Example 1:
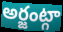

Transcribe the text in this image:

అర్జంట్గా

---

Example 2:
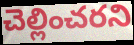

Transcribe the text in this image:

చెల్లించరని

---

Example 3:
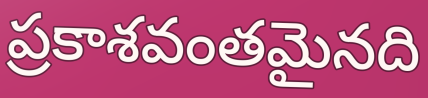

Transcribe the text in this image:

ప్రకాశవంతమైనది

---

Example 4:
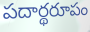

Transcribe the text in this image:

పదార్థరూపం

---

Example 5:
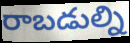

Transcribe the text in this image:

రాబడుల్ని